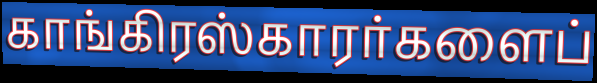
காங்கிரஸ்காரர்களைப்